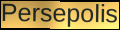
Persepolis